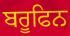
ਬਰੂਫਿਨ